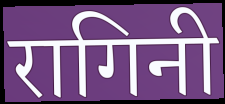
रागिनी